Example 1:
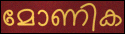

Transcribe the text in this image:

മോണിക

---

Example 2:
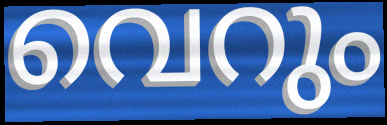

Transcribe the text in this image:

വെറും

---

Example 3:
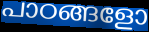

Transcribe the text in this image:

പാഠങ്ങളോ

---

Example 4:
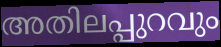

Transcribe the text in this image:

അതിലപ്പുറവും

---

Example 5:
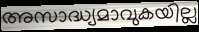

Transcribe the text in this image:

അസാദ്ധ്യമാവുകയില്ല